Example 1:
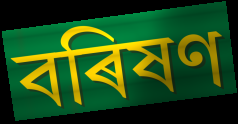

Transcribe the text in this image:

বৰিষণ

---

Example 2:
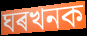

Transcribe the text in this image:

ঘৰখনক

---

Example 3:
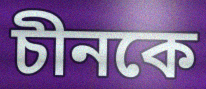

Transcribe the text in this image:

চীনকে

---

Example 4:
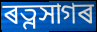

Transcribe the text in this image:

ৰত্নসাগৰ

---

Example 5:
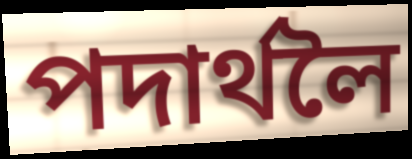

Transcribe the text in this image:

পদাৰ্থলৈ